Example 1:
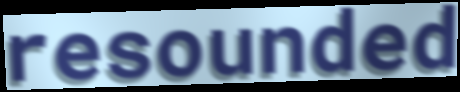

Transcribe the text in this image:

resounded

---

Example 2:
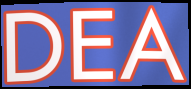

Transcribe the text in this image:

DEA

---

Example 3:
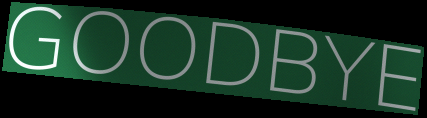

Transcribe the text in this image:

GOODBYE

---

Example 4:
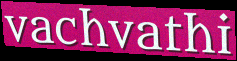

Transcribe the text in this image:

vachvathi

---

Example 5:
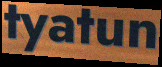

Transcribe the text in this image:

tyatun